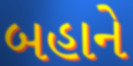
બહાને